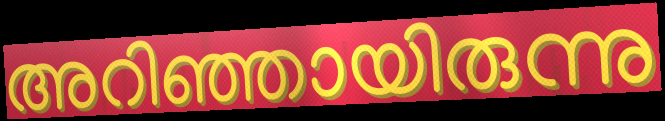
അറിഞ്ഞായിരുന്നു